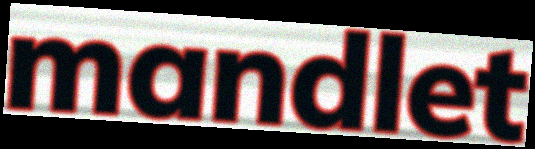
mandlet